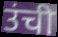
उंची